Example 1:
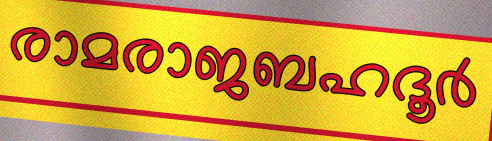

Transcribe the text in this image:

രാമരാജബഹദൂർ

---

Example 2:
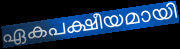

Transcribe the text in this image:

ഏകപക്ഷീയമായി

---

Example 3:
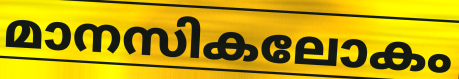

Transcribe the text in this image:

മാനസികലോകം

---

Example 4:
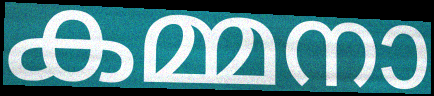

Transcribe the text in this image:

കമ്മനാ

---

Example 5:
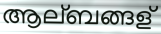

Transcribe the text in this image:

ആല്ബങ്ങള്